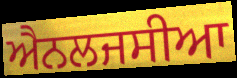
ਐਨਲਜਸੀਆ